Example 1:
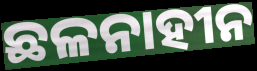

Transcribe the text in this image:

ଛଳନାହୀନ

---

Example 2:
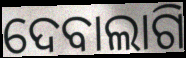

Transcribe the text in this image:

ଦେବାଲାଗି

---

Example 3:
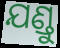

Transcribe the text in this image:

ଯଣ୍ଡୁ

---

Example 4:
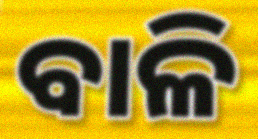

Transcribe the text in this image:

ବାଳି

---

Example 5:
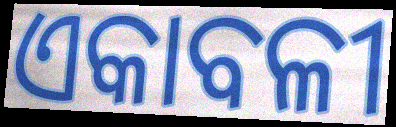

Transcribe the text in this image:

ଏକାବଳୀ